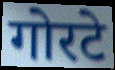
गोरटे